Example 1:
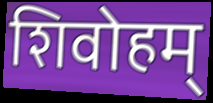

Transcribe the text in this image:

शिवोहम्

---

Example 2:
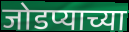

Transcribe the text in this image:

जोडप्याच्या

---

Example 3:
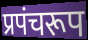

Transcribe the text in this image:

प्रपंचरूप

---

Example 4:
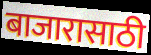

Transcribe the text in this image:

बाजारासाठी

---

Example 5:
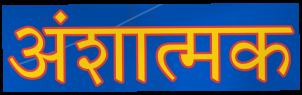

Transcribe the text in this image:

अंशात्मक